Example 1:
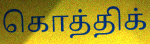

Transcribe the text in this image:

கொத்திக்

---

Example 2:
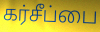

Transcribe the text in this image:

கர்சீப்பை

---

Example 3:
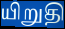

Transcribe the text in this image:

யிறுதி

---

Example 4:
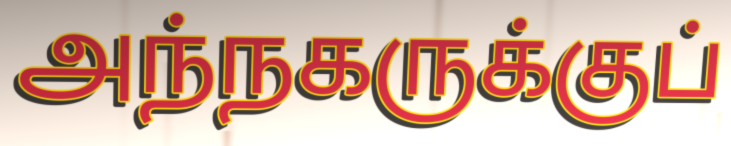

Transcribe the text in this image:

அந்நகருக்குப்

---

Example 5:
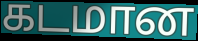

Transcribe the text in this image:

கடமான